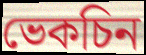
ভেকচিন